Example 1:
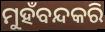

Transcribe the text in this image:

ମୁହଁବନ୍ଦକରି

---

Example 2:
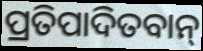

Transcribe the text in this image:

ପ୍ରତିପାଦିତବାନ୍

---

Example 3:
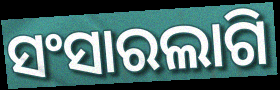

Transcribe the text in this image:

ସଂସାରଲାଗି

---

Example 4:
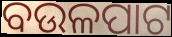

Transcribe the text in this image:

ବଉଳପାଟ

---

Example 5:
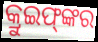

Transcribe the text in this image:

କ୍ରୁଇଫ୍‌ଙ୍କର